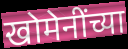
खोमेनींच्या